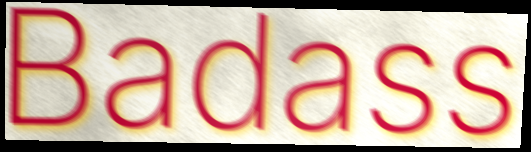
Badass